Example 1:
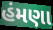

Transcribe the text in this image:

હંમણા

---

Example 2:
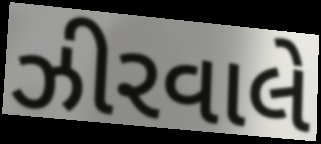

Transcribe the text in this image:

ઝીરવાલે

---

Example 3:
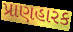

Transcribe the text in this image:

પ્રાણહારક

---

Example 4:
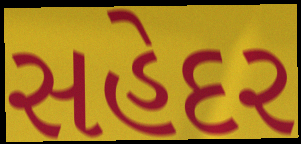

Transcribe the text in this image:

સહેદર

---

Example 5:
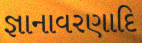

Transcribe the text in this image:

જ્ઞાનાવરણાદિ